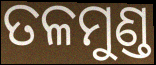
ତଳମୁଣ୍ଡ